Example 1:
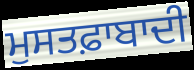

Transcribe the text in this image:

ਮੁਸਤਫ਼ਾਬਾਦੀ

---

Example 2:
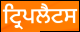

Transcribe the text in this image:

ਟ੍ਰਿਪਲੈਟਸ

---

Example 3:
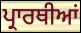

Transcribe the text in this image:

ਪ੍ਰਾਰਥੀਆਂ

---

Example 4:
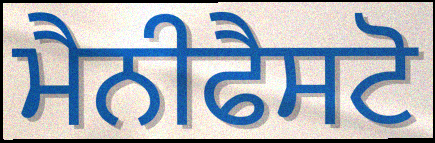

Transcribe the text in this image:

ਮੈਨੀਫੈਸਟੋ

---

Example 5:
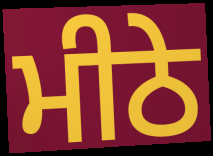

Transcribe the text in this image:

ਮੀਠੇ